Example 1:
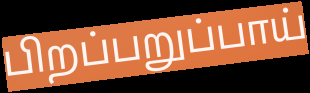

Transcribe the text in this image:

பிறப்பறுப்பாய்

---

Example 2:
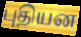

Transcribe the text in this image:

புதியன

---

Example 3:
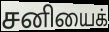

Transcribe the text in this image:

சனியைக்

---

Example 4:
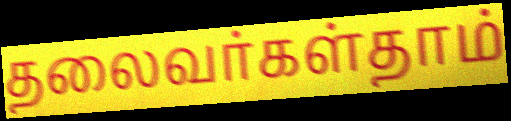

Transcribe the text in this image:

தலைவர்கள்தாம்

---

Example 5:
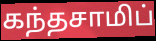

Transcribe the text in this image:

கந்தசாமிப்